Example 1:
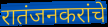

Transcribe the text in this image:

रातंजनकरांचे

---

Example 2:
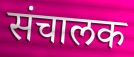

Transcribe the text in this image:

संचालक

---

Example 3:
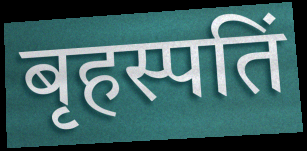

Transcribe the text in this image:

बृहस्पतिं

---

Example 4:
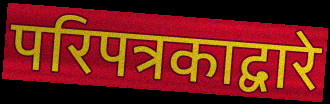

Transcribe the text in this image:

परिपत्रकाद्वारे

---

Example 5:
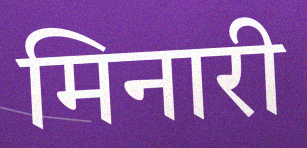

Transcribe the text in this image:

मिनारी